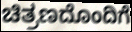
ಚಿತ್ರಣದೊಂದಿಗೆ